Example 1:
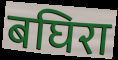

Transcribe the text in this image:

बघिरा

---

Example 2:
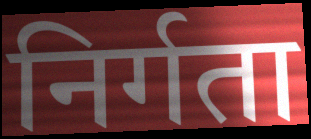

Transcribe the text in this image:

निर्गता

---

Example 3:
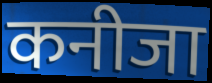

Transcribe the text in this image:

कनीजा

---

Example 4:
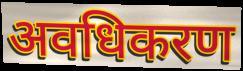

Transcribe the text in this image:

अवधिकरण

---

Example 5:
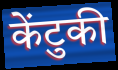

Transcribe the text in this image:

केंटुकी